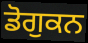
ਡੋਗੁਕਨ